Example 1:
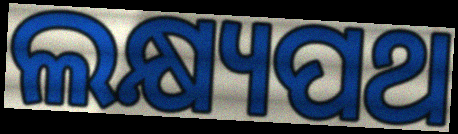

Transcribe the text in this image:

ଲକ୍ଷ୍ୟପଥ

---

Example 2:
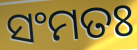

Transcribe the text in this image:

ସଂମତଃ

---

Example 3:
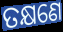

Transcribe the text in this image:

ତକ୍ଷଣେ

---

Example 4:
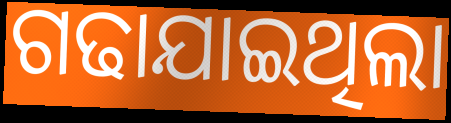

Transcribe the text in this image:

ଗଢାଯାଇଥିଲା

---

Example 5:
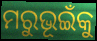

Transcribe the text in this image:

ମରୁଭୂଇଁକୁ